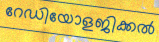
റേഡിയോളജിക്കൽ